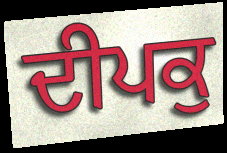
ਦੀਪਕੁ